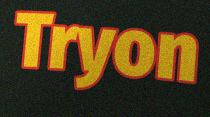
Tryon